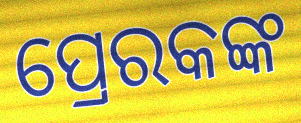
ପ୍ରେରକଙ୍କ